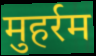
मुहर्रम